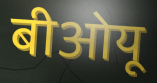
बीओयू